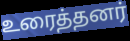
உரைத்தனர்